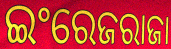
ଇଂରେଜରାଜା